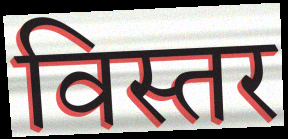
विस्तर